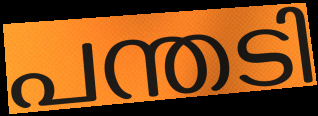
പന്തടി